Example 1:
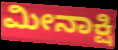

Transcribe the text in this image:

ಮೀನಾಕ್ಷಿ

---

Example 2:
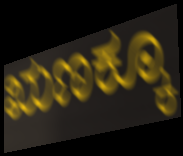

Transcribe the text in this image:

ಋಣಕ್ಕೂ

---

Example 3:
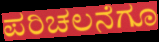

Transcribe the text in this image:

ಪರಿಚಲನೆಗೂ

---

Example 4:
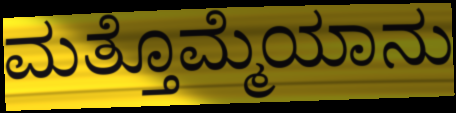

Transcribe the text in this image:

ಮತ್ತೊಮ್ಮೆಯಾನು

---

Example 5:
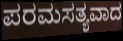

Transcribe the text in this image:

ಪರಮಸತ್ಯವಾದ